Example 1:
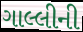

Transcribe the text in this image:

ગાલ્લીની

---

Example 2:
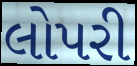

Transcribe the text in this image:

લોપરી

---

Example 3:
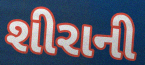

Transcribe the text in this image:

શીરાની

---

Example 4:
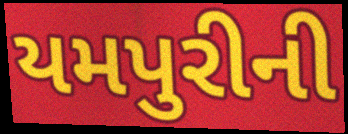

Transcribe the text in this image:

યમપુરીની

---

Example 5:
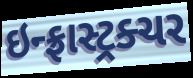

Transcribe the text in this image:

ઇન્ફ્રાસ્ટ્રક્ચર